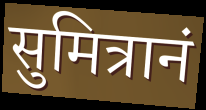
सुमित्रानं